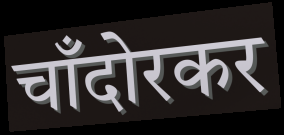
चाँदोरकर